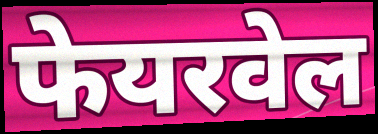
फेयरवेल